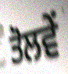
ਤੋਲਵੇਂ